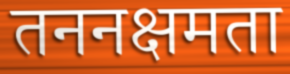
तननक्षमता